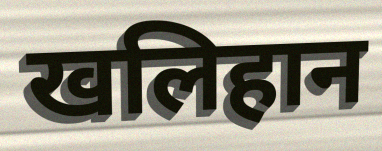
खलिहान